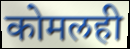
कोमलही